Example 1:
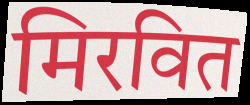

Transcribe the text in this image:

मिरवित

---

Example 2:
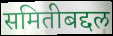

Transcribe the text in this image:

समितीबद्दल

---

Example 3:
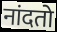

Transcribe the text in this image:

नांदतो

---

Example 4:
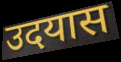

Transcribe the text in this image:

उदयास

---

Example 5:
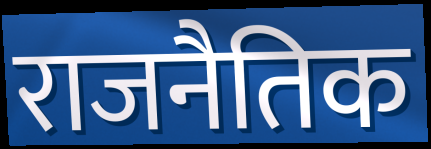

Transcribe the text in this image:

राजनैतिक